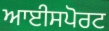
ਆਈਸਪੋਰਟ